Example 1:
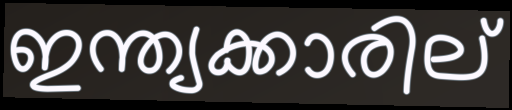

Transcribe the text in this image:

ഇന്ത്യക്കാരില്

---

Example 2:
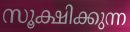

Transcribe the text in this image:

സൂക്ഷിക്കുന്ന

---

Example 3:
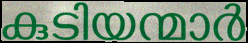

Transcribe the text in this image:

കുടിയന്മാർ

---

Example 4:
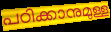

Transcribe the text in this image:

പഠിക്കാനുമുള്ള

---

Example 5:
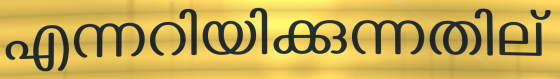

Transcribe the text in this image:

എന്നറിയിക്കുന്നതില്